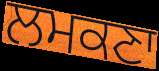
ਲਮਕਣਾ